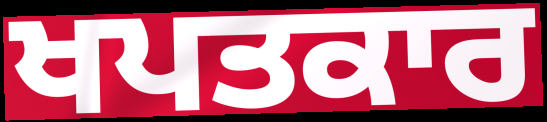
ਖਪਤਕਾਰ